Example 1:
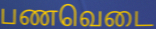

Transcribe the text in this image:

பணவெடை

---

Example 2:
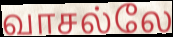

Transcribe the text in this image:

வாசல்லே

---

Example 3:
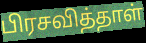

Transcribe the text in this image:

பிரசவித்தாள்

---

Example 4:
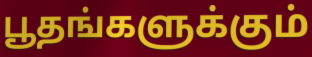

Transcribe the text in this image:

பூதங்களுக்கும்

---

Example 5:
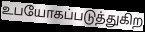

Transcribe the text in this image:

உபயோகப்படுத்துகிற